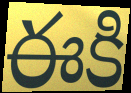
ఈకి